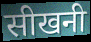
सीखनी